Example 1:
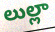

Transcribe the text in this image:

లుల్లా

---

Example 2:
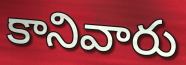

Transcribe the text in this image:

కానివారు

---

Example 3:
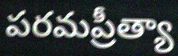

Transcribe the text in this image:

పరమప్రీత్యా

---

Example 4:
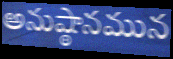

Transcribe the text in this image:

అనుష్ఠానమున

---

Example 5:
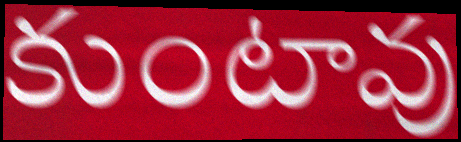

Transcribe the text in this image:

కుంటావు